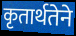
कृतार्थतेने